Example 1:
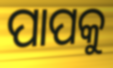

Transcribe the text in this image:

ପାପକୁ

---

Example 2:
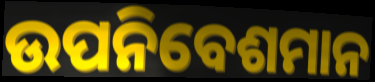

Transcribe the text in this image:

ଉପନିବେଶମାନ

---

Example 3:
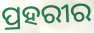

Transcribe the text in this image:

ପ୍ରହରୀର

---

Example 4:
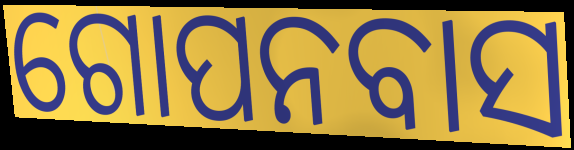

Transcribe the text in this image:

ଗୋପନବାସ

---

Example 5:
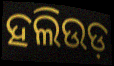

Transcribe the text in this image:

ହଲିଉଡ଼